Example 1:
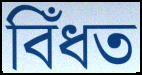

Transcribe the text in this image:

বিঁধত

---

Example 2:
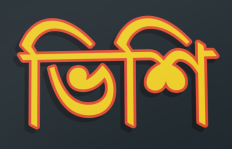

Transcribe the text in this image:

ভিশি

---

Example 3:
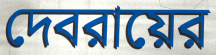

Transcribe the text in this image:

দেবরায়ের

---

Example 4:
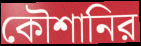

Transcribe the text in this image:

কৌশানির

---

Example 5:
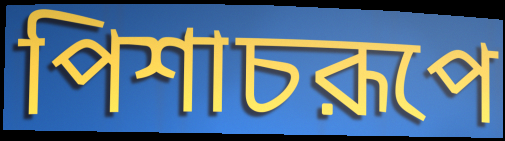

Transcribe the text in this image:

পিশাচরূপে